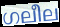
ഗലീല